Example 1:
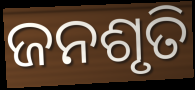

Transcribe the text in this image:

ଜନଶୃତି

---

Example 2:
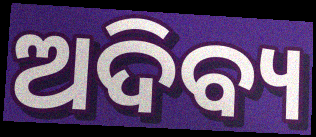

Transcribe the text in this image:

ଅଦିବ୍ୟ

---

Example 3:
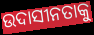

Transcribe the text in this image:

ଉଦାସୀନତାକୁ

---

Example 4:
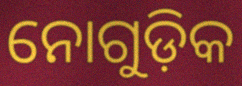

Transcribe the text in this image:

ନୋଗୁଡ଼ିକ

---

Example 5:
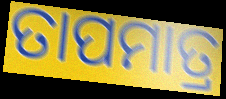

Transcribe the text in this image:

ତାପମାତ୍ର